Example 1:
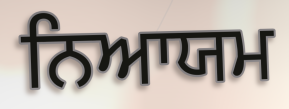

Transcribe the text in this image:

ਨਿਆਯਮ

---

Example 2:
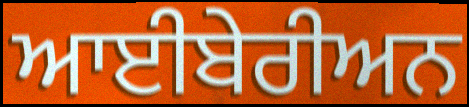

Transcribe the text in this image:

ਆਈਬੇਰੀਅਨ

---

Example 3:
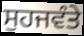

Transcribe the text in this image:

ਸੁਹਜਵੰਤੇ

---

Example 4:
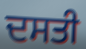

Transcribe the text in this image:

ਦਸਤੀ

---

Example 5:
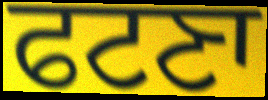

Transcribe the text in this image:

ਫਟਣਾ